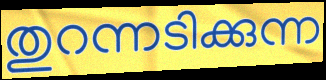
തുറന്നടിക്കുന്ന